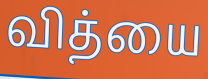
வித்யை